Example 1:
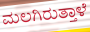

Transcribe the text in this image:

ಮಲಗಿರುತ್ತಾಳೆ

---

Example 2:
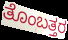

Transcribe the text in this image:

ತೊಂಬತ್ತರ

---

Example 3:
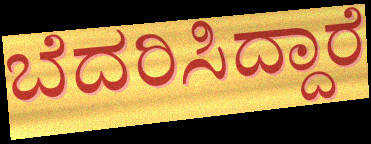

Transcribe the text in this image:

ಬೆದರಿಸಿದ್ದಾರೆ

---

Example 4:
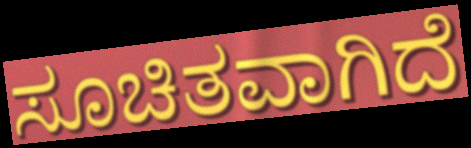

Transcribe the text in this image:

ಸೂಚಿತವಾಗಿದೆ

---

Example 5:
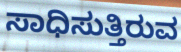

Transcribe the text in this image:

ಸಾಧಿಸುತ್ತಿರುವ